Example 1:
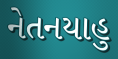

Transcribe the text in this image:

નેતનયાહુ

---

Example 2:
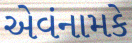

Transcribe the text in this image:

એવંનામકે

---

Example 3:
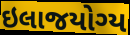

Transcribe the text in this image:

ઇલાજયોગ્ય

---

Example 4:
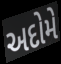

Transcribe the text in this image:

અદોમે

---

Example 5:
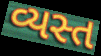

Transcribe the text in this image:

વ્યસ્ત